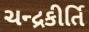
ચન્દ્રકીર્તિ